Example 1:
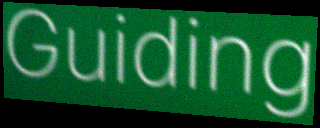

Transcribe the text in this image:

Guiding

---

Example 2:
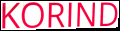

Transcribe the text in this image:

KORIND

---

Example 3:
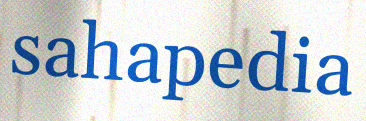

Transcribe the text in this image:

sahapedia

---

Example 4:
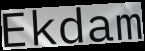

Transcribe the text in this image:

Ekdam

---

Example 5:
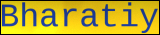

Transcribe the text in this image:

Bharatiy